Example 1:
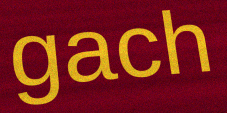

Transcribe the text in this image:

gach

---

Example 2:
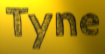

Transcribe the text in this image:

Tyne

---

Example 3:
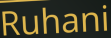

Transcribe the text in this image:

Ruhani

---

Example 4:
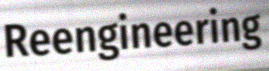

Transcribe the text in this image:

Reengineering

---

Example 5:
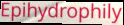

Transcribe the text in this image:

Epihydrophily